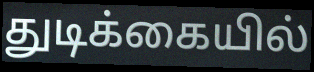
துடிக்கையில்